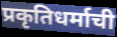
प्रकृतिधर्माची